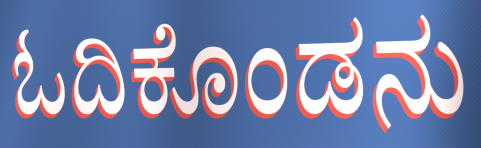
ಓದಿಕೊಂಡನು